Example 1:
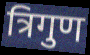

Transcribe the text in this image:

त्रिगुण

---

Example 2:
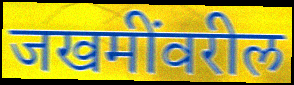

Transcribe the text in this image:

जखमींवरील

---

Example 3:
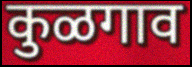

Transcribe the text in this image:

कुळगाव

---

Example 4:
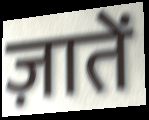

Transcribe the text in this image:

ज़ातें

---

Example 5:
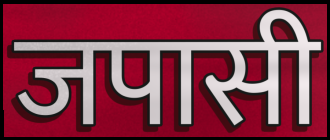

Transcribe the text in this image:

जपासी